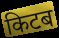
किटब